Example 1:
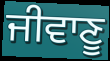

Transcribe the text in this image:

ਜੀਵਾਣੂ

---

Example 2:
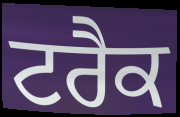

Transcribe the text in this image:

ਟਰੈਕ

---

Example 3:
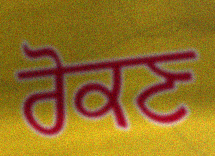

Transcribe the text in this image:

ਰੋਕਣ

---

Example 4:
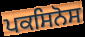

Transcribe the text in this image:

ਪਕਸਿਨੋਸ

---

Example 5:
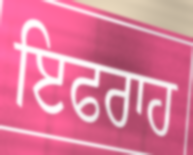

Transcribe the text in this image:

ਇਫਰਾਹ